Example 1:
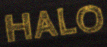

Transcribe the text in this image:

HALO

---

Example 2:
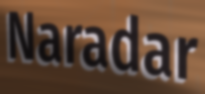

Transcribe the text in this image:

Naradar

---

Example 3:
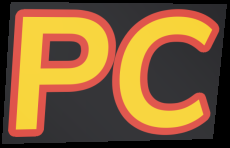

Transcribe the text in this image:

PC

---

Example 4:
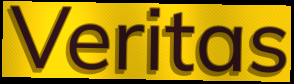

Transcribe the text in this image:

Veritas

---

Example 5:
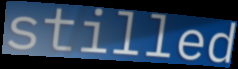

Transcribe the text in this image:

stilled